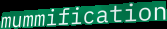
mummification